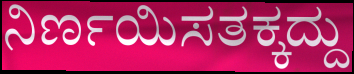
ನಿರ್ಣಯಿಸತಕ್ಕದ್ದು